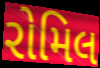
રોમિલ